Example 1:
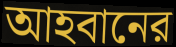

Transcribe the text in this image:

আহবানের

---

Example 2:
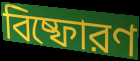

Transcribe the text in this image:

বিষ্ফোরণ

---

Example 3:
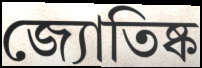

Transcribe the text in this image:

জ্যোতিষ্ক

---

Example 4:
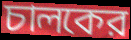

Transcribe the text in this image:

চালকের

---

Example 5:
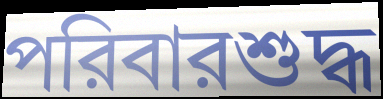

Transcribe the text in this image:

পরিবারশুদ্ধ